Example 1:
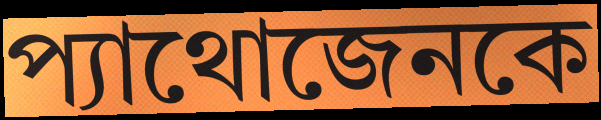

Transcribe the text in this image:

প্যাথোজেনকে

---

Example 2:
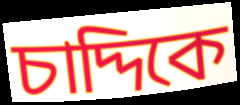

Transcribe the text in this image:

চাদ্দিকে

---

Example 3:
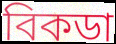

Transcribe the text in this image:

বিকডা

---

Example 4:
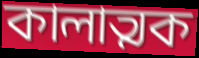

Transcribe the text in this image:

কালাত্মক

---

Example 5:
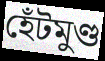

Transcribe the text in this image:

হেঁটমুণ্ড